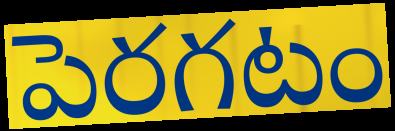
పెరగటం